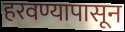
हरवण्यापासून